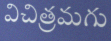
విచిత్రమగు